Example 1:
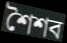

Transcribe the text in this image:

শৈশব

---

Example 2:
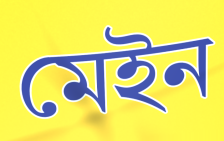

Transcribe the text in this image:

মেইন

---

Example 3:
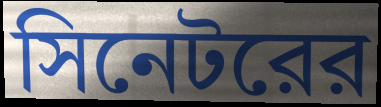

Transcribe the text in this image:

সিনেটরের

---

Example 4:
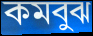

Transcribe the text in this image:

কমবুঝ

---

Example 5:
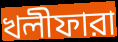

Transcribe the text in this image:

খলীফারা